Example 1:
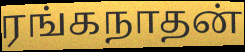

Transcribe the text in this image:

ரங்கநாதன்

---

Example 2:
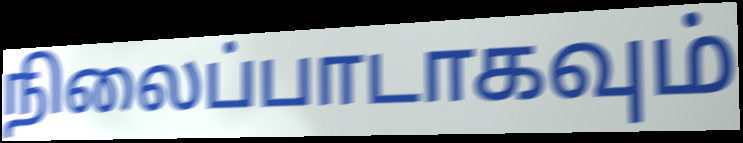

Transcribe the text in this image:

நிலைப்பாடாகவும்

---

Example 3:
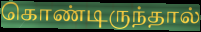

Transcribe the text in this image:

கொண்டிருந்தால்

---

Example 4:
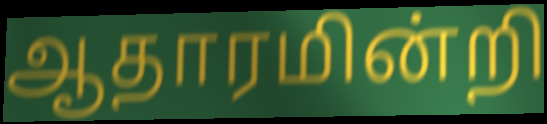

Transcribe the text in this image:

ஆதாரமின்றி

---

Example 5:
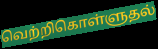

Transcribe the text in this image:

வெற்றிகொள்ளுதல்